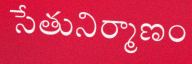
సేతునిర్మాణం